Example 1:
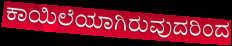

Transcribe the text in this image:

ಕಾಯಿಲೆಯಾಗಿರುವುದರಿಂದ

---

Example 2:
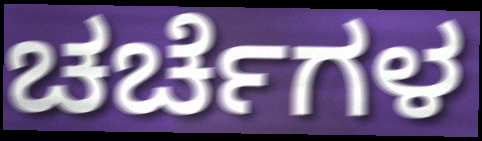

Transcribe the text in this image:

ಚರ್ಚೆಗಳ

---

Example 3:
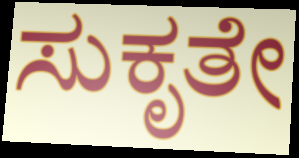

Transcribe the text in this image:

ಸುಕೃತೇ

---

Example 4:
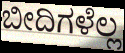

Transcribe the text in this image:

ಬೀದಿಗಳೆಲ್ಲ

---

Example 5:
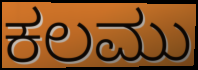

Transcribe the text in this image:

ಕಲಮು